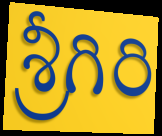
శ్రీగిరి